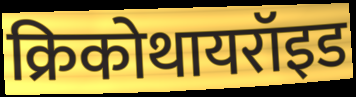
क्रिकोथायरॉइड